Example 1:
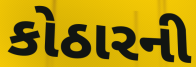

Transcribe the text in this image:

કોઠારની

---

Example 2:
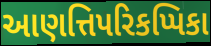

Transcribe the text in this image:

આણત્તિપરિકપ્પિકા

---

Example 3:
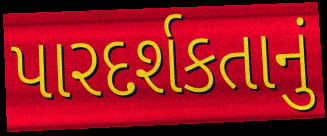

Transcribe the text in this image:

પારદર્શકતાનું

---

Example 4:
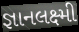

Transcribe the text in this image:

જ્ઞાનલક્ષ્મી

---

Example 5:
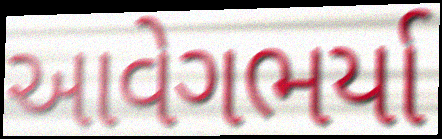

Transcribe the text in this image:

આવેગભર્યા